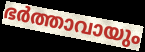
ഭർത്താവായും